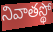
నివాతస్థో